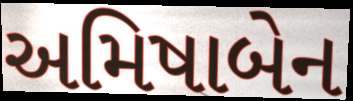
અમિષાબેન